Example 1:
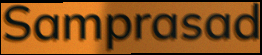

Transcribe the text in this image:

Samprasad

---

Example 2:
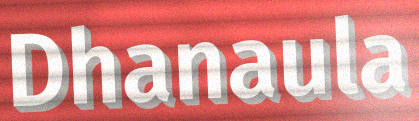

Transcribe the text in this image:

Dhanaula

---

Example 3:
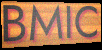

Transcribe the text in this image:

BMIC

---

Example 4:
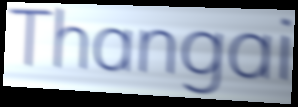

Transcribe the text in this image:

Thangai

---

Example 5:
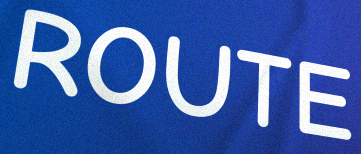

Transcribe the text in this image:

ROUTE